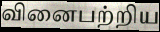
வினைபற்றிய